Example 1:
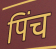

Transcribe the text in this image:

पिंच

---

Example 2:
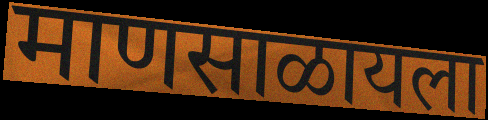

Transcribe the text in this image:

माणसाळायला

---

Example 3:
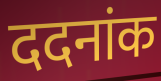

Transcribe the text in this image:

ददनांक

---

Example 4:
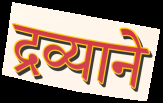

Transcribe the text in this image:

द्रव्याने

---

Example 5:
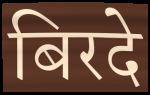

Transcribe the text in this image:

बिरदे